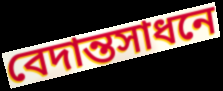
বেদান্তসাধনে